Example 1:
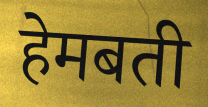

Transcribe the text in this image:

हेमबती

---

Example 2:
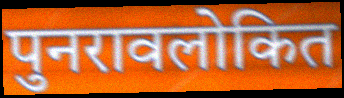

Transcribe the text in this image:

पुनरावलोकित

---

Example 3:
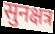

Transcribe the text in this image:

सुनक्षत्र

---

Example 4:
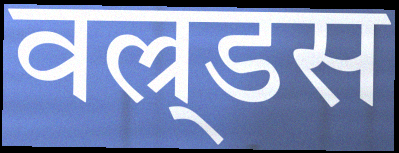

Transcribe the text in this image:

वल्र्डस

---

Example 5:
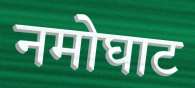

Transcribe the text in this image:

नमोघाट